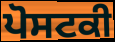
ਪੋਸਟਕੀ